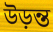
উড়ন্ত